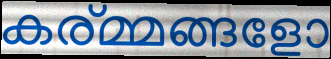
കര്മ്മങ്ങളോ